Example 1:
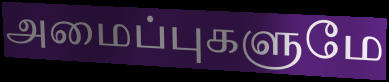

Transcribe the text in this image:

அமைப்புகளுமே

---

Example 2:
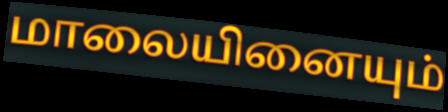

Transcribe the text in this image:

மாலையினையும்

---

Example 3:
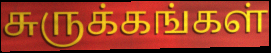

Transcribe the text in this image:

சுருக்கங்கள்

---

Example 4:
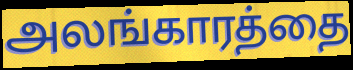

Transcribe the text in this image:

அலங்காரத்தை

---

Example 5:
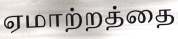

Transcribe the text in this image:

ஏமாற்றத்தை